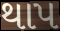
થાપ